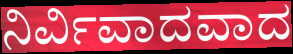
ನಿರ್ವಿವಾದವಾದ